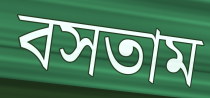
বসতাম